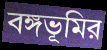
বঙ্গভূমির